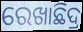
ରେଖାଛିଦ୍ର